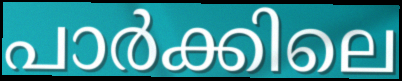
പാർക്കിലെ